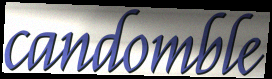
candomble